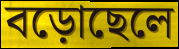
বড়োছেলে